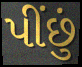
પીંછું